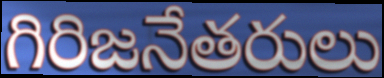
గిరిజనేతరులు